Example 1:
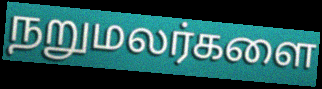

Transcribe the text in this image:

நறுமலர்களை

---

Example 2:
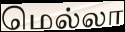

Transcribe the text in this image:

மெல்லா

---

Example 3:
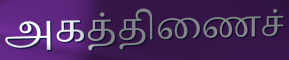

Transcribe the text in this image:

அகத்திணைச்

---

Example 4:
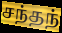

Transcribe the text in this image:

சந்தந்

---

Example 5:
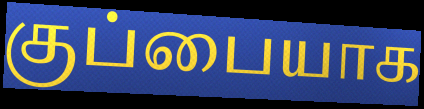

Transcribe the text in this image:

குப்பையாக